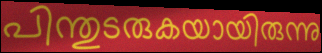
പിന്തുടരുകയായിരുന്നു